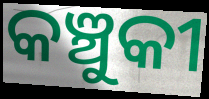
କଞ୍ଚୁକୀ